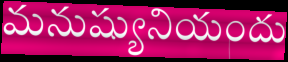
మనుష్యునియందు